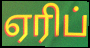
ஏரிப்